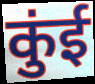
कुंई